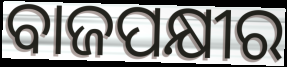
ବାଜପକ୍ଷୀର